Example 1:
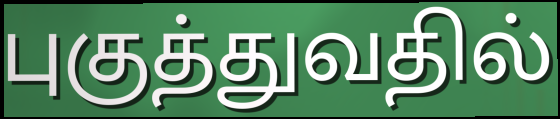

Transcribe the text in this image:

புகுத்துவதில்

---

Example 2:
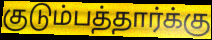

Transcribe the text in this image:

குடும்பத்தார்க்கு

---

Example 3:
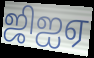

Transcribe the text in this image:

ஜிஐஏ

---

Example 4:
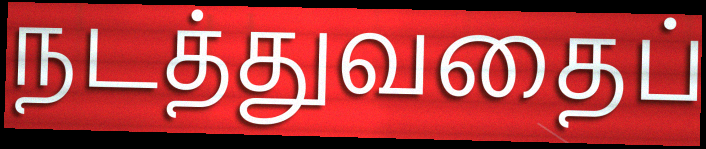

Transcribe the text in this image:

நடத்துவதைப்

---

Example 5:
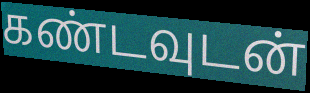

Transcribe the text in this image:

கண்டவுடன்